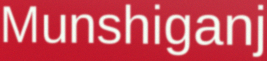
Munshiganj